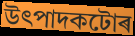
উৎপাদকটোৰ